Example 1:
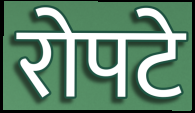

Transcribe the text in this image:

रोपटे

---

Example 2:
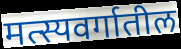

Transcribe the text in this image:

मत्स्यवर्गातील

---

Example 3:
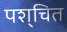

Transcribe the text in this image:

पश्चित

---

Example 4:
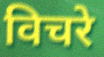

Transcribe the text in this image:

विचरे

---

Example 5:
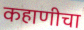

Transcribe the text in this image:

कहाणीचा